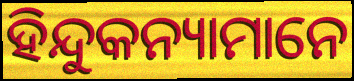
ହିନ୍ଦୁକନ୍ୟାମାନେ